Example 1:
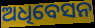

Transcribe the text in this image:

ଅଧିବେସନ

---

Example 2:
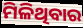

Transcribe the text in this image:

ମିଳିଥିବାର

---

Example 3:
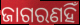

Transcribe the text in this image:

ଜାଗରଣହିଁ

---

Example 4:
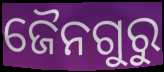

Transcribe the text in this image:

ଜୈନଗୁରୁ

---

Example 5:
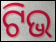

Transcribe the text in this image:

ଟିଭ